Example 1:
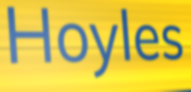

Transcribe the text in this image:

Hoyles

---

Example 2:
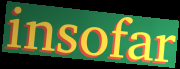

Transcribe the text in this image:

insofar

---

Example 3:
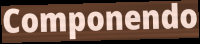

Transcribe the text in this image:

Componendo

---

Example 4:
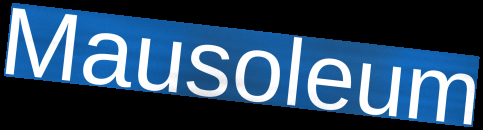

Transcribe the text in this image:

Mausoleum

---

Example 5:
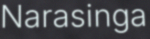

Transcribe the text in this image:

Narasinga